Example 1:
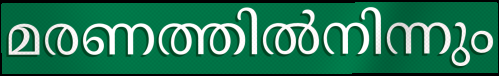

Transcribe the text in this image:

മരണത്തിൽനിന്നും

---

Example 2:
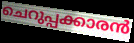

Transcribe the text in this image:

ചെറുപ്പക്കാരൻ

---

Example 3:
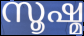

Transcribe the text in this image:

സൂഷ്മ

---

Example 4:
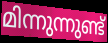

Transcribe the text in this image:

മിന്നുന്നുണ്ട്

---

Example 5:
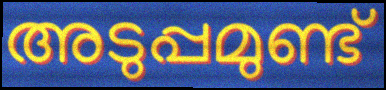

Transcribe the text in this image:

അടുപ്പമുണ്ട്